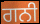
ਗਨੀ